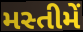
મસ્તીમેં